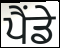
ਪੈਂਡੇ